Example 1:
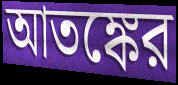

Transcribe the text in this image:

আতঙ্কের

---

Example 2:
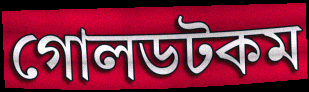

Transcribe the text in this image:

গোলডটকম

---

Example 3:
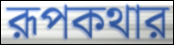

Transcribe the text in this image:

রূপকথার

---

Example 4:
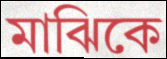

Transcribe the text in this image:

মাঝিকে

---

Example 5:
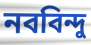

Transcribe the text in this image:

নববিন্দু